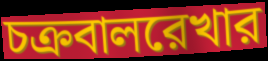
চক্রবালরেখার